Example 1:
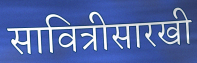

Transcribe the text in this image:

सावित्रीसारखी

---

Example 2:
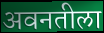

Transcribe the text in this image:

अवनतीला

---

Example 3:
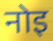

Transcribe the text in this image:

नोइ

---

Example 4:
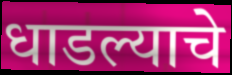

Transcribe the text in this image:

धाडल्याचे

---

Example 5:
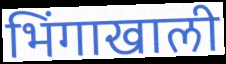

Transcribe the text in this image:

भिंगाखाली